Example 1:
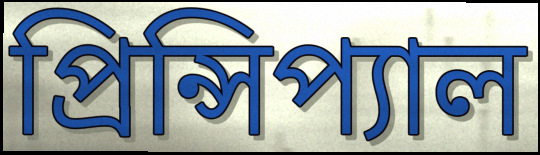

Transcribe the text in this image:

প্রিন্সিপ্যাল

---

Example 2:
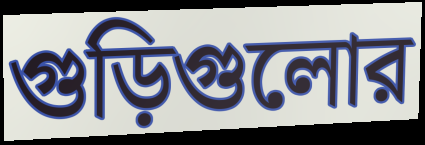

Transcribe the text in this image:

গুড়িগুলোর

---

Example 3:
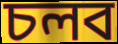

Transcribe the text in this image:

চলব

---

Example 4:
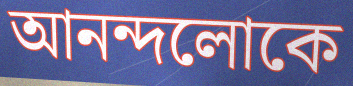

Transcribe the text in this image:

আনন্দলোকে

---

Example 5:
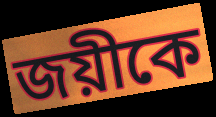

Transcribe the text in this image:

জয়ীকে